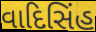
વાદિસિંહ